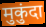
मुकुंदा